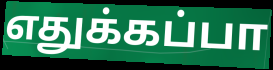
எதுக்கப்பா